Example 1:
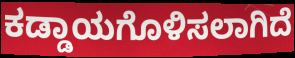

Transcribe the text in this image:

ಕಡ್ಡಾಯಗೊಳಿಸಲಾಗಿದೆ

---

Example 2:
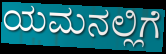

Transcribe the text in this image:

ಯಮನಲ್ಲಿಗೆ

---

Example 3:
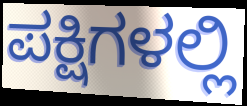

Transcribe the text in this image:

ಪಕ್ಷಿಗಳಲ್ಲಿ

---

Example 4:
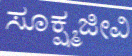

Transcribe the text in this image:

ಸೂಕ್ಷ್ಮಜೀವಿ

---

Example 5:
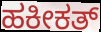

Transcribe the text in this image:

ಹಕೀಕತ್